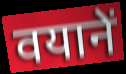
वयानें